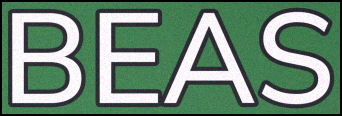
BEAS